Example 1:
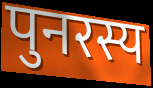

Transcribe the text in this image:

पुनरस्य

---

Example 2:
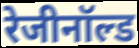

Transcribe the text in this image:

रेजीनॉल्ड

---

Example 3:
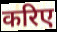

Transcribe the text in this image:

करिए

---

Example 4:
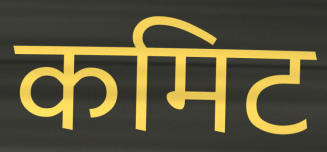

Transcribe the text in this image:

कमिट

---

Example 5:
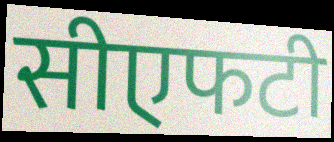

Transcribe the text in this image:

सीएफटी